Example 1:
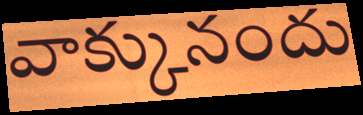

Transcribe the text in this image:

వాక్కునందు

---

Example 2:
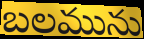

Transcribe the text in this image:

బలమును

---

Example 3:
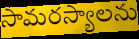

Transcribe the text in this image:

సామరస్యాలను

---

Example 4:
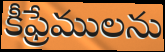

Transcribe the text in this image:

కీఫ్రేములను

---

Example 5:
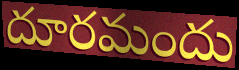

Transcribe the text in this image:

దూరమందు